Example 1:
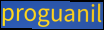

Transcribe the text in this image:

proguanil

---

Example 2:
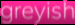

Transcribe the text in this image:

greyish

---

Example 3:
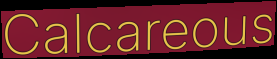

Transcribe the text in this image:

Calcareous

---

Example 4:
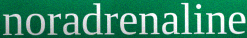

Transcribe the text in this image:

noradrenaline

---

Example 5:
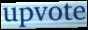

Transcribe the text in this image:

upvote